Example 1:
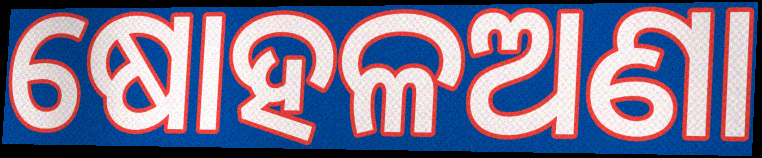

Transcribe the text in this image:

ଷୋହଳଅଣା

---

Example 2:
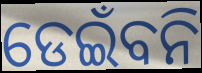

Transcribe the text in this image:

ଡେଇଁବନି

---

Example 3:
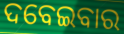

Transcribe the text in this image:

ଦବେଇବାର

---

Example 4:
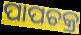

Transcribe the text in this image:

ପାପଚକ୍ର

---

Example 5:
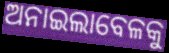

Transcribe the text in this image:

ଅନାଇଲାବେଳକୁ